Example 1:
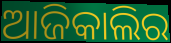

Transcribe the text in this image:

ଆଜିକାଲିର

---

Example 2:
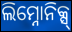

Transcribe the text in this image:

ଲିମ୍ନୋନିକ୍ସ୍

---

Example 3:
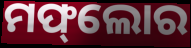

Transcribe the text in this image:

ମଫ୍‌ଲୋର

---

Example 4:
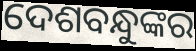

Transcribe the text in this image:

ଦେଶବନ୍ଧୁଙ୍କର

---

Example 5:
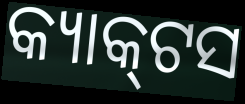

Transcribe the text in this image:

କ୍ୟାକ୍‌ଟସ